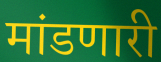
मांडणारी